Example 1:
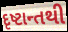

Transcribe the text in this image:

દૃષ્ટાન્તથી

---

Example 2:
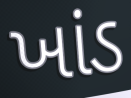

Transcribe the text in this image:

ખાંડ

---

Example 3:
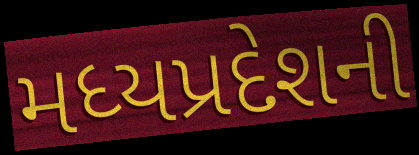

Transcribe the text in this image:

મધ્યપ્રદેશની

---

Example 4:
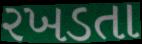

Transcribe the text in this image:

રખડતા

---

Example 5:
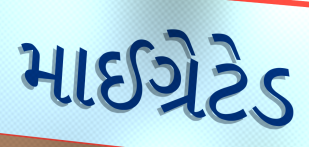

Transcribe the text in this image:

માઈગ્રેટેડ